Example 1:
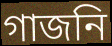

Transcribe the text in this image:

গাজনি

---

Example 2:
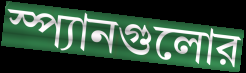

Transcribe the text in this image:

স্প্যানগুলোর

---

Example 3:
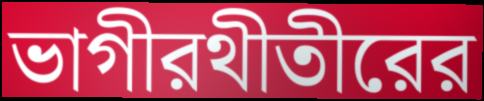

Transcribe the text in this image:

ভাগীরথীতীরের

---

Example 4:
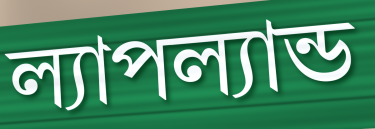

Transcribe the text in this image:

ল্যাপল্যান্ড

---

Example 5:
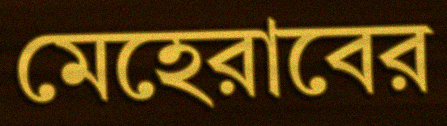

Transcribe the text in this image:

মেহেরাবের